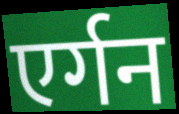
एर्गन